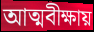
আত্মবীক্ষায়